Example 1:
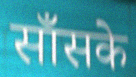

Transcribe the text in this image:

साँसके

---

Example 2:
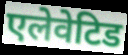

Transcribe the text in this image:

एलेवेटिड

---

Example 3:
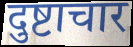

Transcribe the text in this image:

दुष्टाचार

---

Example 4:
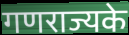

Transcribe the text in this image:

गणराज्यके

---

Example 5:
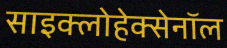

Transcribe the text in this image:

साइक्लोहेक्सेनॉल